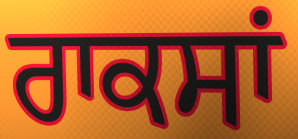
ਰਾਕਸਾਂ